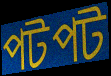
পটপট